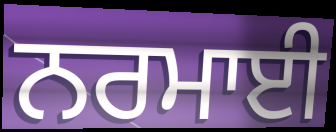
ਨਰਮਾਈ